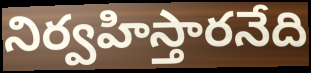
నిర్వహిస్తారనేది